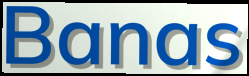
Banas